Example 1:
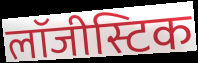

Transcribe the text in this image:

लॉजीस्टिक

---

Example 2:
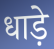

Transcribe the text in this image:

धाड़े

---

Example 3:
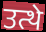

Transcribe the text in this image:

उत्थे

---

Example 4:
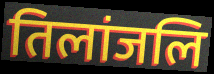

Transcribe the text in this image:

तिलांजलि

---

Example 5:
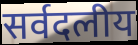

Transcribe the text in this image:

सर्वदलीय